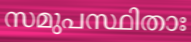
സമുപസ്ഥിതാഃ